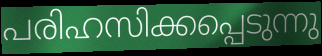
പരിഹസിക്കപ്പെടുന്നു